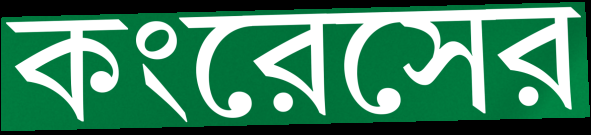
কংরেসের